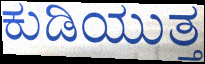
ಕುಡಿಯುತ್ತ